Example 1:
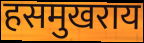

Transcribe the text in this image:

हसमुखराय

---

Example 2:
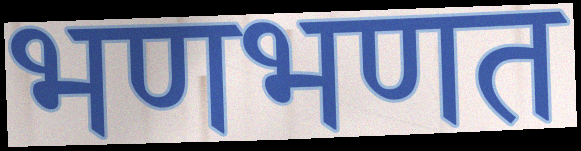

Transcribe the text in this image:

भणभणत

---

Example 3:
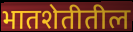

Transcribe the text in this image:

भातशेतीतील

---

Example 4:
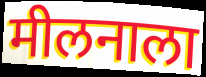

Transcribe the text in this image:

मीलनाला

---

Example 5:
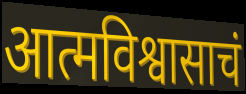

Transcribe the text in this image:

आत्मविश्वासाचं